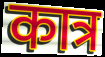
कात्र